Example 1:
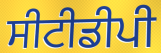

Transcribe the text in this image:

ਸੀਟੀਡੀਪੀ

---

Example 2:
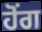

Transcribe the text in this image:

ਹੋੰਗ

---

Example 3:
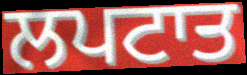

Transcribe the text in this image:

ਲਪਟਾਤ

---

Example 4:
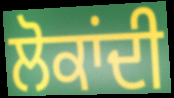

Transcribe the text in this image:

ਲੋਕਾਂਦੀ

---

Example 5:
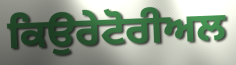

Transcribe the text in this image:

ਕਿਉਰੇਟੋਰੀਅਲ